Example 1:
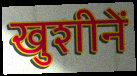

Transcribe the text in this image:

खुशीनें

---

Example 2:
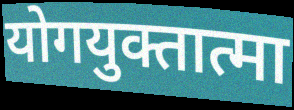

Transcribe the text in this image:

योगयुक्तात्मा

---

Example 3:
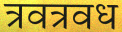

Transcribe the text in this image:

त्रवत्रवध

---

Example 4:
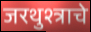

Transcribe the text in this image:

जरथुश्त्राचे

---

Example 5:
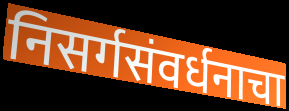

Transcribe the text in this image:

निसर्गसंवर्धनाचा